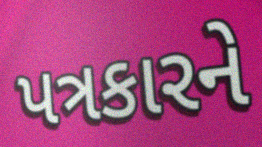
પત્રકારને